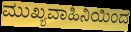
ಮುಖ್ಯವಾಹಿನಿಯಿಂದ